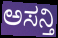
ಅಸನ್ತಿ